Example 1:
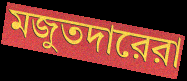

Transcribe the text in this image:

মজুতদারেরা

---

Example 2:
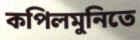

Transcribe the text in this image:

কপিলমুনিতে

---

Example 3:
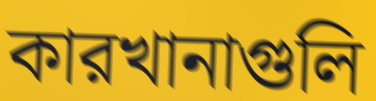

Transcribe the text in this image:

কারখানাগুলি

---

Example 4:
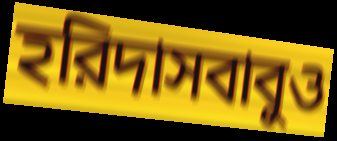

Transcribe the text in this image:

হরিদাসবাবুও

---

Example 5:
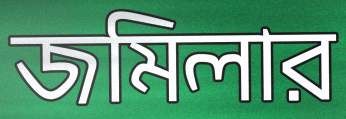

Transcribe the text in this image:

জমিলার